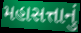
મહાસત્તાનું